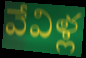
వేవిళ్ల